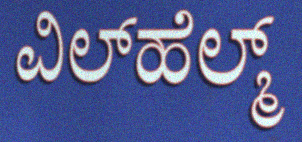
ವಿಲ್‌ಹೆಲ್ಮ್